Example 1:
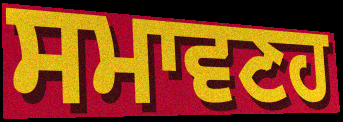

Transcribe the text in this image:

ਸਮਾਵਣਹ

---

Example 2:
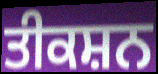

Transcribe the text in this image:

ਤੀਕਸ਼ਨ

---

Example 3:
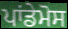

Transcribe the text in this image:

ਪਾਂਡੇਮੋਸ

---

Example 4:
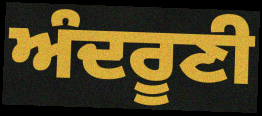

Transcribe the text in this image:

ਅੰਦਰੂਣੀ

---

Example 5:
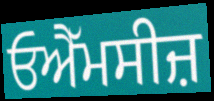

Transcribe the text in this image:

ਓਐੱਮਸੀਜ਼